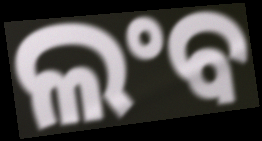
ଲଂବ